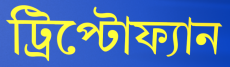
ট্রিপ্টোফ্যান